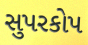
સુપરકોપ